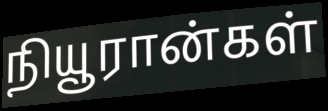
நியூரான்கள்